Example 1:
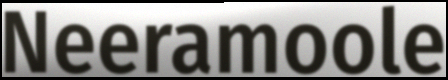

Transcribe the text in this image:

Neeramoole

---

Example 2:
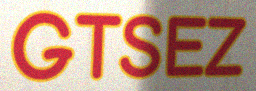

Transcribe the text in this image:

GTSEZ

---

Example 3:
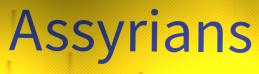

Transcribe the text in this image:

Assyrians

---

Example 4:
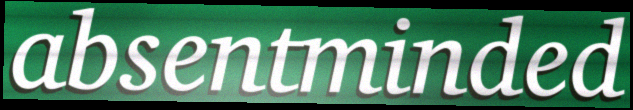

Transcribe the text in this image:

absentminded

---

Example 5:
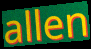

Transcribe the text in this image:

allen